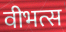
वीभत्स